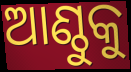
ଆଣ୍ଠୁକୁ